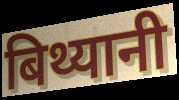
बिथ्यानी